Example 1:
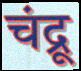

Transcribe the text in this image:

चंद्रू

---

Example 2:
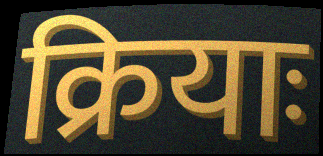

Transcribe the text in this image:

क्रियाः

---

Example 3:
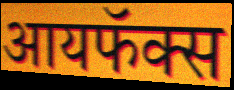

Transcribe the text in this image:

आयफॅक्स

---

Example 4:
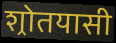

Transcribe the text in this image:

श्रोतयासी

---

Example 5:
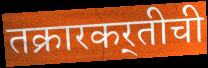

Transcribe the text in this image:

तक्रारकर्तीची